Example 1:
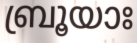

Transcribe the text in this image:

ബ്രൂയാഃ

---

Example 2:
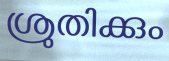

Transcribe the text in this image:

ശ്രുതിക്കും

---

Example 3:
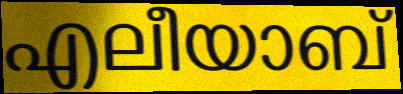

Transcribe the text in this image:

എലീയാബ്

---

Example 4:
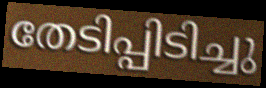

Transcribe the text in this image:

തേടിപ്പിടിച്ചു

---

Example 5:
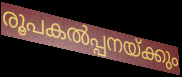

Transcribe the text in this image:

രൂപകൽപ്പനയ്ക്കും